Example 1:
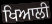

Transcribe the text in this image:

ਖਿਆਲੀ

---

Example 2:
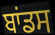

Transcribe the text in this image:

ਬਾਂਡਸ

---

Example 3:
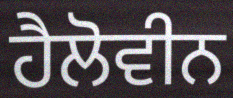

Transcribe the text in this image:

ਹੈਲੋਵੀਨ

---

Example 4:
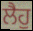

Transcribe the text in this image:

ਲੈਹੁ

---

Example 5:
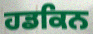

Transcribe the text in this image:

ਹਡਕਿਨ